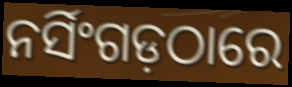
ନର୍ସିଂଗଡ଼ଠାରେ